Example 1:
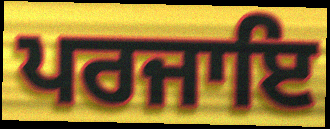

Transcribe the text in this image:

ਪਰਜਾਇ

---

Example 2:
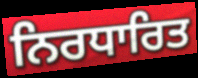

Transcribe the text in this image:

ਨਿਰਧਾਰਿਤ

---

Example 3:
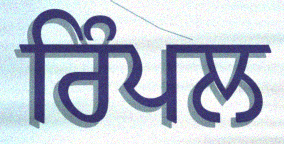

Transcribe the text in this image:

ਰਿੰਪਲ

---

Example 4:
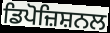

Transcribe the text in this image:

ਡਿਪੋਜ਼ਿਸ਼ਨਲ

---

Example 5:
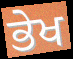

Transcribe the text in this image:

ਭੇਖ